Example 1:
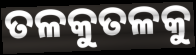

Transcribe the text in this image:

ତଳକୁତଳକୁ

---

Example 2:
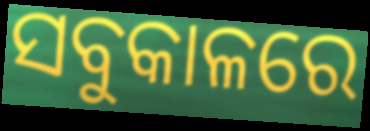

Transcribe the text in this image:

ସବୁକାଳରେ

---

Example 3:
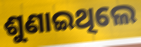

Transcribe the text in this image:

ଶୁଣାଇଥିଲେ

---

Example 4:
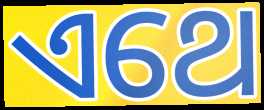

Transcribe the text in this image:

ଏଥେ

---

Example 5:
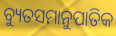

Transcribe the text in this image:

ବ୍ୟୁତସମାନୁପାତିକ